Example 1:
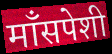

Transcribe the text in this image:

माँसपेशी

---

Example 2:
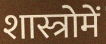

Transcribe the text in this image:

शास्त्रोमें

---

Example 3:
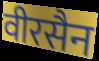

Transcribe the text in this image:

वीरसैन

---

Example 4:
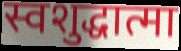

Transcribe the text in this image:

स्वशुद्धात्मा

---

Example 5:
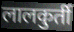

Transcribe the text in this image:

लालकुर्ती